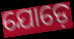
ଯୋଡ଼େ